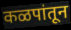
कळपांतून